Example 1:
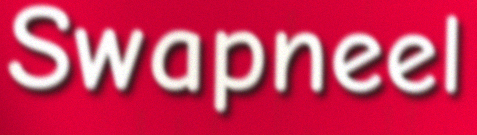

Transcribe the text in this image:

Swapneel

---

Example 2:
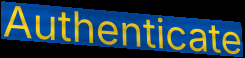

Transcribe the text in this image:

Authenticate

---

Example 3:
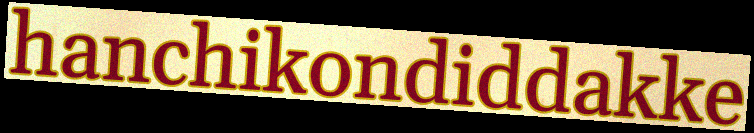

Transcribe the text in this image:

hanchikondiddakke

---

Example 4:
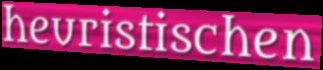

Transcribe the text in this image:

heuristischen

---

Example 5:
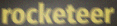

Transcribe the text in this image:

rocketeer